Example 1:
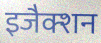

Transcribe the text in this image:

इजैक्शन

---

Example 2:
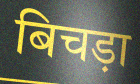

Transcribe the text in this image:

बिचड़ा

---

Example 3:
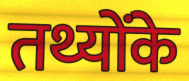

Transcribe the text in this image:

तथ्योंके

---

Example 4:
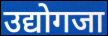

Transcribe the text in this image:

उद्योगजा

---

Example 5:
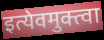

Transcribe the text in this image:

इत्येवमुक्त्वा